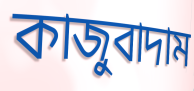
কাজুবাদাম